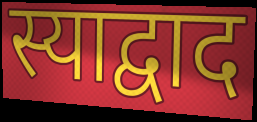
स्याद्वाद